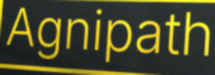
Agnipath